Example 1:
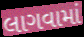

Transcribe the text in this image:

લાગવામાં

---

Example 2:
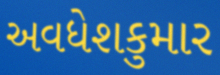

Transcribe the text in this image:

અવધેશકુમાર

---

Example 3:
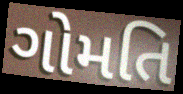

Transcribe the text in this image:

ગોમતિ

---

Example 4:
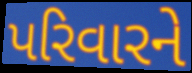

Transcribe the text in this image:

પરિવારને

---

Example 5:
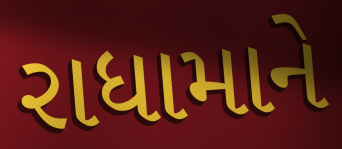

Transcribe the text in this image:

રાધામાને